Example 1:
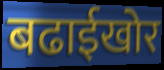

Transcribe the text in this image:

बढाईखोर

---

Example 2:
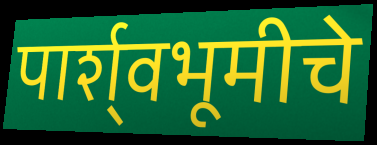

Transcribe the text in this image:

पार्श्वभूमीचे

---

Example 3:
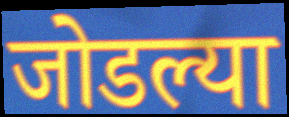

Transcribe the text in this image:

जोडल्या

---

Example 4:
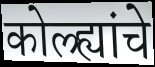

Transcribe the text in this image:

कोल्ह्यांचे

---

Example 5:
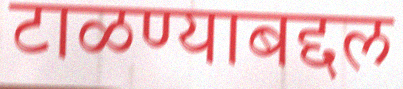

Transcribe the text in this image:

टाळण्याबद्दल